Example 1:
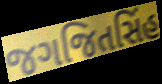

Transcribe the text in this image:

જગજિતસિંહ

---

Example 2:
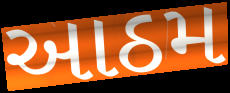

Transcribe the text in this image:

આઠમ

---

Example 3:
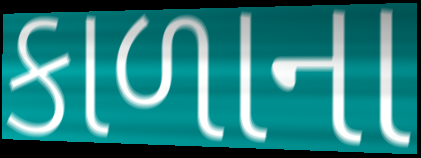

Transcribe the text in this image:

કાળાના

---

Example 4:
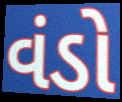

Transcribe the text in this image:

વંડો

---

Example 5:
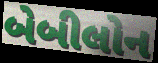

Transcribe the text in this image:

બેબીલોન